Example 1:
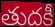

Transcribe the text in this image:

తుదకీ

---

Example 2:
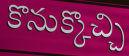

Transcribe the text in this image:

కొనుక్కొచ్చి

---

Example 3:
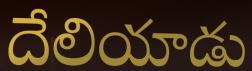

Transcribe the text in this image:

దేలియాడు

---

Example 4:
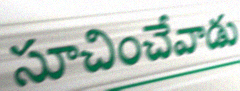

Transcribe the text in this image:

సూచించేవాడు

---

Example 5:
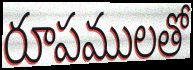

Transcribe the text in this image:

రూపములతో